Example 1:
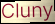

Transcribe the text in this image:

Cluny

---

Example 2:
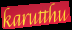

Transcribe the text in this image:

karutthu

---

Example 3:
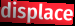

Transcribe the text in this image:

displace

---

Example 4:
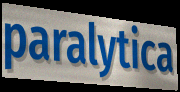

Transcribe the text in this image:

paralytica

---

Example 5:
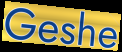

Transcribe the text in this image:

Geshe